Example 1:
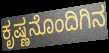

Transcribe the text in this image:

ಕೃಷ್ಣನೊಂದಿಗಿನ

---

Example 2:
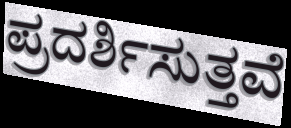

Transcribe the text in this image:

ಪ್ರದರ್ಶಿಸುತ್ತವೆ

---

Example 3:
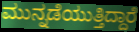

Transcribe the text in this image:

ಮುನ್ನಡೆಯುತ್ತಿದ್ದಾರೆ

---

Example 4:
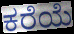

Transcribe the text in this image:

ಕರೆಯೆ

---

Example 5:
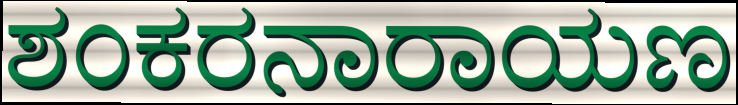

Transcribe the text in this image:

ಶಂಕರನಾರಾಯಣ